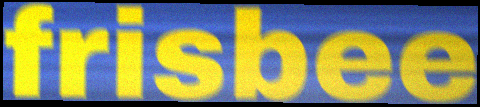
frisbee